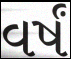
વર્ષં